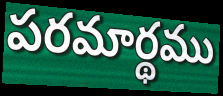
పరమార్థము